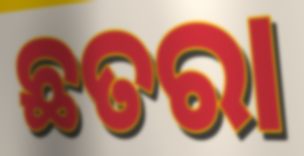
ଛତରା